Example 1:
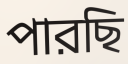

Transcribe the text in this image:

পারছি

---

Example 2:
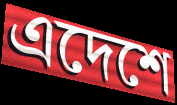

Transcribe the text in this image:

এদেশে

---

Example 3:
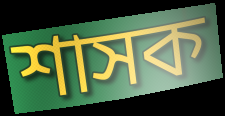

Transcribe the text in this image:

শাসক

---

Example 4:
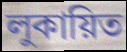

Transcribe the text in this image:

লুকায়িত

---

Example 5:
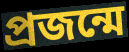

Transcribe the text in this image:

প্রজন্মে